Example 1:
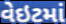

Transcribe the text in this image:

વેઇટમાં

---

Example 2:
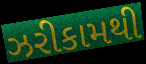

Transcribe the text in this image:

ઝરીકામથી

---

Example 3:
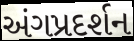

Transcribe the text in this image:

અંગપ્રદર્શન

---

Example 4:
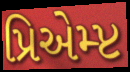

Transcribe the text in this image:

પ્રિએમ્પ્ટ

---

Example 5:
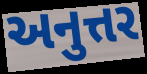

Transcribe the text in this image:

અનુત્તર